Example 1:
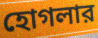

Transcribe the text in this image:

হোগলার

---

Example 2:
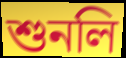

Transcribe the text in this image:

শুনলি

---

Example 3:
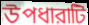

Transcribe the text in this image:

উপধারাটি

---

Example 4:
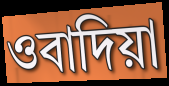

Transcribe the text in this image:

ওবাদিয়া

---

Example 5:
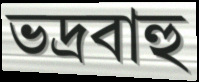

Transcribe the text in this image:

ভদ্রবাহু